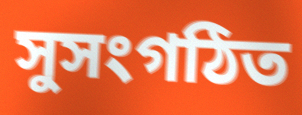
সুসংগঠিত